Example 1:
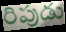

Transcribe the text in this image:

రిపుడు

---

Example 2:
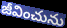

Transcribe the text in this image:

జీవించును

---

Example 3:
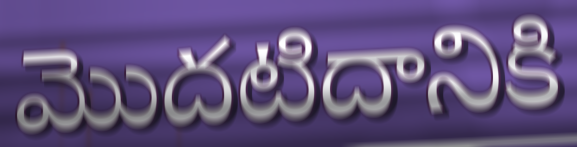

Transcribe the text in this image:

మొదటిదానికి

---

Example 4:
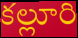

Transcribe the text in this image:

కల్లూరి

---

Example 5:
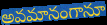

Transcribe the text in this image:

అవమానంగానూ